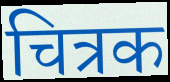
चित्रक